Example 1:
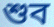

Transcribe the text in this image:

শুব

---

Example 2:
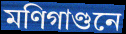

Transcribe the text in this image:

মণিগাণ্ডনে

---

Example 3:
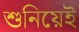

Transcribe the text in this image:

শুনিয়েই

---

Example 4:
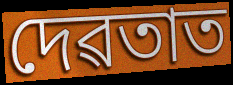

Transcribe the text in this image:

দেৱতাত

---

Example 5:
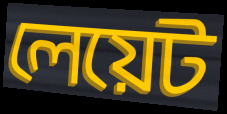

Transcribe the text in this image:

লেয়েট